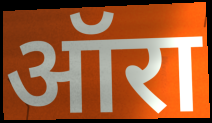
ऑरा